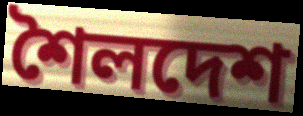
শৈলদেশ